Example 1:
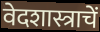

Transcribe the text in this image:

वेदशास्त्राचें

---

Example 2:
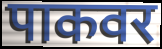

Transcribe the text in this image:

पाकवर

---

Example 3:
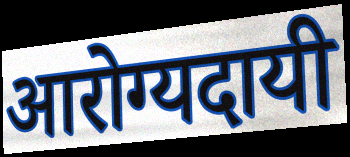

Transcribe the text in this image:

आरोग्यदायी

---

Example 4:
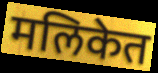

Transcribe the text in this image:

मलिकेत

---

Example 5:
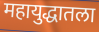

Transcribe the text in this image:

महायुद्धातला